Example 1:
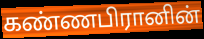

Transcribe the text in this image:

கண்ணபிரானின்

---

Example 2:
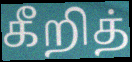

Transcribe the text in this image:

கீறித்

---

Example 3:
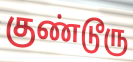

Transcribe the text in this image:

குண்டூரு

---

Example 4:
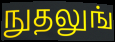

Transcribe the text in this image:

நுதலுங்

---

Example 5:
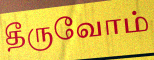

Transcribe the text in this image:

தீருவோம்